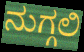
ನುಗ್ಗಲಿ